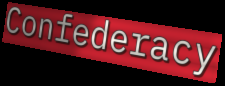
Confederacy